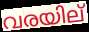
വരയില്